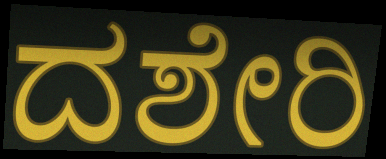
ದಶೇರಿ